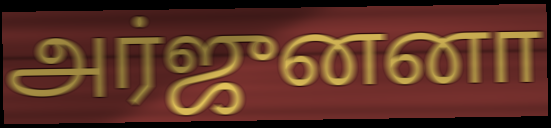
அர்ஜுனனா